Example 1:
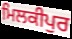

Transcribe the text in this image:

ਮਿਲਕੀਪੁਰ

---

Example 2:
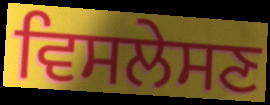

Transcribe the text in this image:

ਵਿਸਲੇਸਣ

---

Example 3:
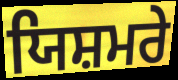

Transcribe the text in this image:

ਯਿਸ਼ਮਰੇ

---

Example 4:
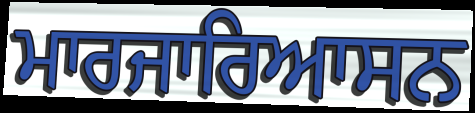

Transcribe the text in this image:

ਮਾਰਜਾਰਿਆਸਨ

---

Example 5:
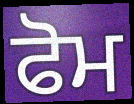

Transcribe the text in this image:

ਫੋਮ